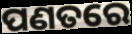
ପଣତରେ